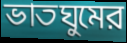
ভাতঘুমের